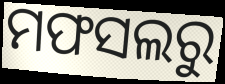
ମଫସଲରୁ